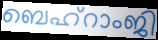
ബെഹ്റാംജി